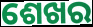
ଶେଖର